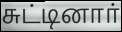
சுட்டினார்